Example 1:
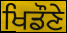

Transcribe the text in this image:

ਖਿਡੌਣੇ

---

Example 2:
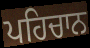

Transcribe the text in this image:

ਪਹਿਚਾਨ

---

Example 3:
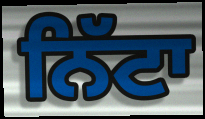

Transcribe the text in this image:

ਨਿੱਟਾ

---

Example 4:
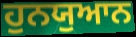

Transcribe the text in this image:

ਹੁਨਯੁਆਨ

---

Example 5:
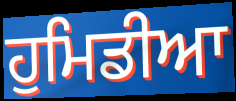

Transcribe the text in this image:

ਹੁਮਿਡੀਆ